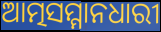
ଆତ୍ମସମ୍ମାନଧାରୀ